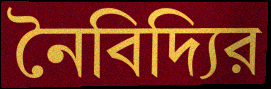
নৈবিদ্যির